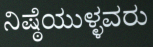
ನಿಷ್ಠೆಯುಳ್ಳವರು